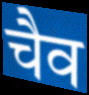
चैव